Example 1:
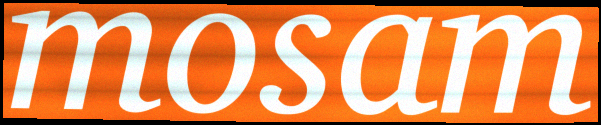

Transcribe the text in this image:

mosam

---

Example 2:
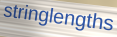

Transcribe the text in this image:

stringlengths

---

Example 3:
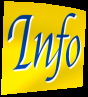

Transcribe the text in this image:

Info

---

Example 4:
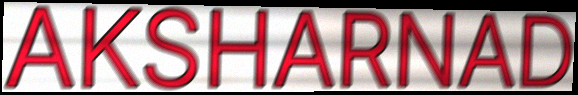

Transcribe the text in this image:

AKSHARNAD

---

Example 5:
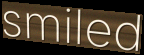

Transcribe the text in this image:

smiled